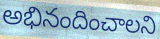
అభినందించాలని